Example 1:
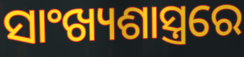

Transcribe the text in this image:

ସାଂଖ୍ୟଶାସ୍ତ୍ରରେ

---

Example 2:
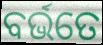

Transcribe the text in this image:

ବର୍ଭତେ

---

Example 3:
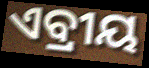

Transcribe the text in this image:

ଏବ୍ରୀୟ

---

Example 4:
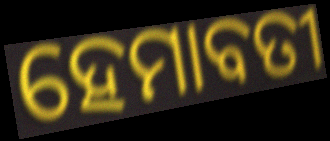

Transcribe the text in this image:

ହେମାବତୀ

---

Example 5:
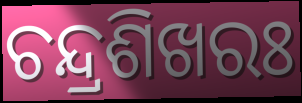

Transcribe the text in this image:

ଚନ୍ଦ୍ରଶିଖରଃ